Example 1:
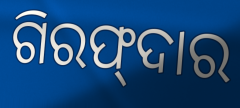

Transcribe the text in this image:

ଗିରଫ୍‍ଦାର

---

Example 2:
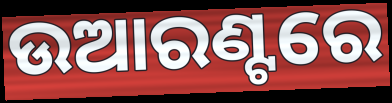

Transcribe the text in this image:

ଉଆରଣ୍ଟରେ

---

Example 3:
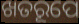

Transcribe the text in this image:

ଖତରୂପେ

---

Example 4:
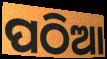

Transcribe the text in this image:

ପଠିଆ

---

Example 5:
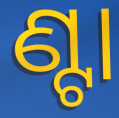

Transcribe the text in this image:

ଣ୍ଟା